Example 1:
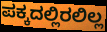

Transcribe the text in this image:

ಪಕ್ಕದಲ್ಲಿರಲಿಲ್ಲ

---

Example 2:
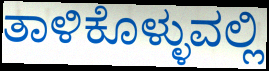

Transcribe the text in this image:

ತಾಳಿಕೊಳ್ಳುವಲ್ಲಿ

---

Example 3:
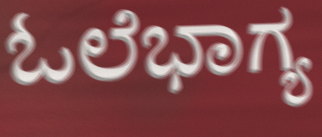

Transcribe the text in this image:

ಓಲೆಭಾಗ್ಯ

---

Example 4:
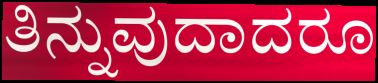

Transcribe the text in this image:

ತಿನ್ನುವುದಾದರೂ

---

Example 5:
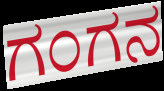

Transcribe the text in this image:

ಗಂಗನ